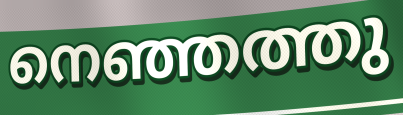
നെഞ്ഞത്തു